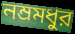
নম্রমধুর